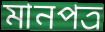
মানপত্র